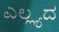
ಎಲ್ಲ್ಯದ